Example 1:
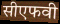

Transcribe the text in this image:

सीएफवी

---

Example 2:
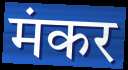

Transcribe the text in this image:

मंकर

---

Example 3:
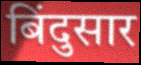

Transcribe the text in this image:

बिंदुसार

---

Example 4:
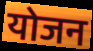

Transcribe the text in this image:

योजन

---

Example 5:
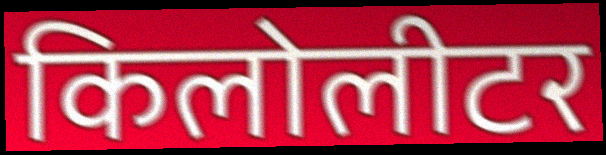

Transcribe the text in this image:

किलोलीटर